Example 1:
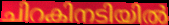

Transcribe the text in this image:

ചിറകിനടിയിൽ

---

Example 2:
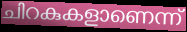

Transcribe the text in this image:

ചിറകുകളാണെന്ന്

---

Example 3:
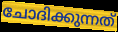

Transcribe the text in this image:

ചോദിക്കുന്നത്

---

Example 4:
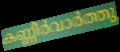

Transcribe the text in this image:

കണ്ണീർവാർത്തു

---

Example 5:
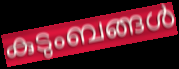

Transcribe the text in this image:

കുടുംബങ്ങൾ